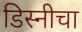
डिस्नीचा